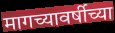
मागच्यावर्षीच्या